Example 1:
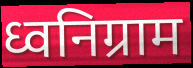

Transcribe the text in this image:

ध्वनिग्राम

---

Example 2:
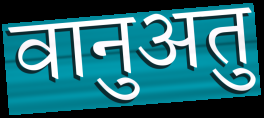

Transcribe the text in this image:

वानुअतु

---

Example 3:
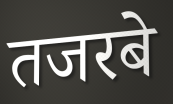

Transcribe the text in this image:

तजरबे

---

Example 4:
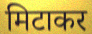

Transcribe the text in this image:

मिटाकर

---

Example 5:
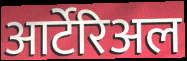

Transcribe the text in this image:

आर्टेरिअल